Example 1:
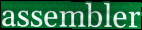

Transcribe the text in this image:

assembler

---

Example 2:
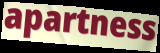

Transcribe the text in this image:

apartness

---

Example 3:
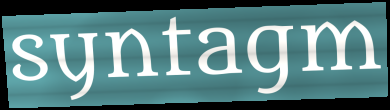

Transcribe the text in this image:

syntagm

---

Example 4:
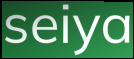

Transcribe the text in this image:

seiya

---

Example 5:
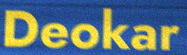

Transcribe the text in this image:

Deokar